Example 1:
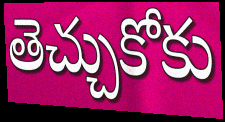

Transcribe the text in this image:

తెచ్చుకోకు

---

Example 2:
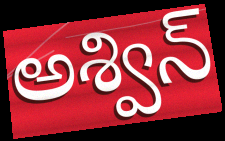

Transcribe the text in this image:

అశ్విన్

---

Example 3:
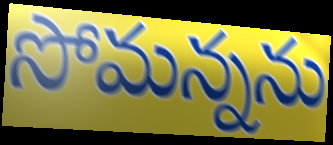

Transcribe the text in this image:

సోమన్నను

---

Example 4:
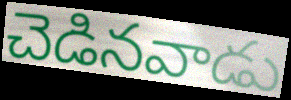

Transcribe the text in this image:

చెడినవాడు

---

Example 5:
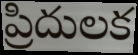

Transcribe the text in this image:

ప్రిదులక